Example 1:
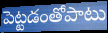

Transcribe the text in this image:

పెట్టడంతోపాటు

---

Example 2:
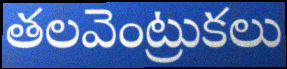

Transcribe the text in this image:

తలవెంట్రుకలు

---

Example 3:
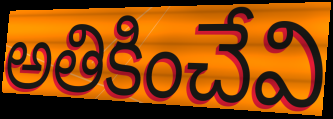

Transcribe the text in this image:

అతికించేవి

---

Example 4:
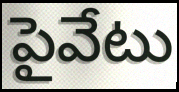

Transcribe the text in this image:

పైవేటు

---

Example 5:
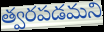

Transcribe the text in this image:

త్వరపడమని